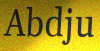
Abdju